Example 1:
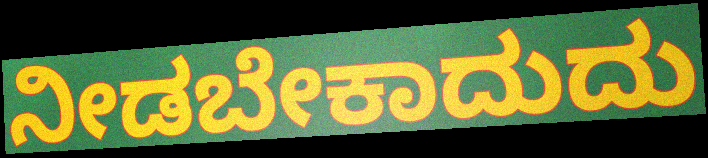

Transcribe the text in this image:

ನೀಡಬೇಕಾದುದು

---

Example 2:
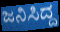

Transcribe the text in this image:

ಜನಿಸಿದ್ದ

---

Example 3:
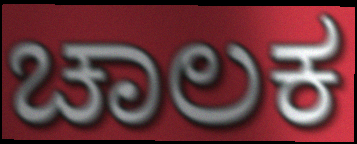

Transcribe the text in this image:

ಚಾಲಕ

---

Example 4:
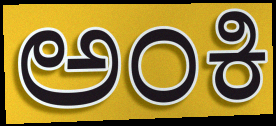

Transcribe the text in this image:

ಅಂಕಿ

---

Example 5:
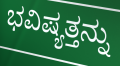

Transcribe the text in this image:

ಭವಿಷ್ಯತ್ತನ್ನು